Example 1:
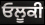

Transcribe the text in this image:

ਓਲੂਕੀ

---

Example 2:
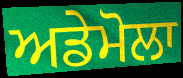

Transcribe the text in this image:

ਅਡੇਮੋਲਾ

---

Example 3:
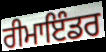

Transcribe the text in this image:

ਰੀਮਾਇੰਡਰ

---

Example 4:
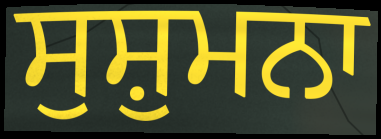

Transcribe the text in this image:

ਸੁਸ਼ੁਮਨਾ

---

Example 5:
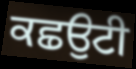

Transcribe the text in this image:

ਕਛਉਟੀ